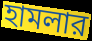
হামলার